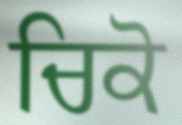
ਚਿਕੋ